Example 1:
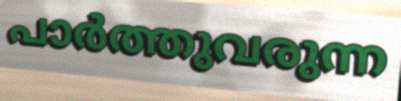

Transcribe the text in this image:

പാർത്തുവരുന്ന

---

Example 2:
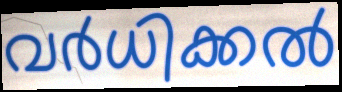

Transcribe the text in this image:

വർധിക്കൽ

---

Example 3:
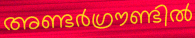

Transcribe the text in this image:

അണ്ടർഗ്രൗണ്ടിൽ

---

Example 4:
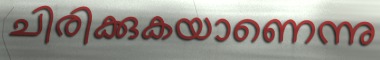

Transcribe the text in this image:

ചിരിക്കുകയാണെന്നു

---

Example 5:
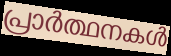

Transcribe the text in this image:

പ്രാർത്ഥനകൾ